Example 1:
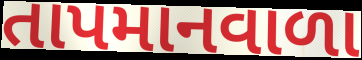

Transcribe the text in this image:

તાપમાનવાળા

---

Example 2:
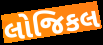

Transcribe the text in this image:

લોજિકલ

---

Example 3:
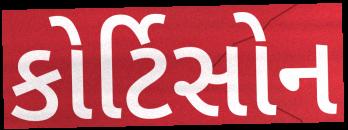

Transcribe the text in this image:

કોર્ટિસોન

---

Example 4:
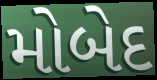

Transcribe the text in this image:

મોબેદ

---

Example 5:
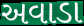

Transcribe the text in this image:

અવાડા